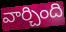
వార్చింది